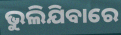
ଭୁଲିଯିବାରେ